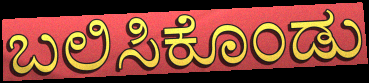
ಬಲಿಸಿಕೊಂಡು